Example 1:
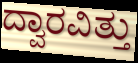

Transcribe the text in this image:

ದ್ವಾರವಿತ್ತು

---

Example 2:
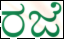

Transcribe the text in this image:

ರಜೆ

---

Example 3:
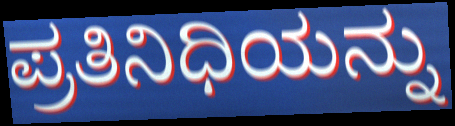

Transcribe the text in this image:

ಪ್ರತಿನಿಧಿಯನ್ನು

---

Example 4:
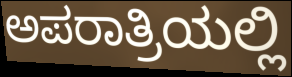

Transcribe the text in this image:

ಅಪರಾತ್ರಿಯಲ್ಲಿ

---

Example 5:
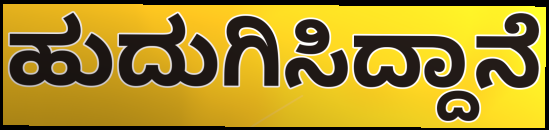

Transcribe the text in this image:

ಹುದುಗಿಸಿದ್ದಾನೆ